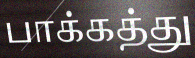
பாக்கத்து